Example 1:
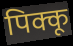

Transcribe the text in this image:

पिक्कू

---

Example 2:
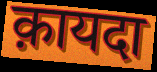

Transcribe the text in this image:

क़ायदा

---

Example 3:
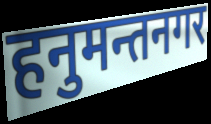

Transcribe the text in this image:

हनुमन्तनगर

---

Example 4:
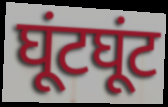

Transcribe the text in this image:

घूंटघूंट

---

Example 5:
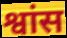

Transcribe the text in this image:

श्वांस